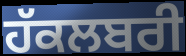
ਹੱਕਲਬਰੀ